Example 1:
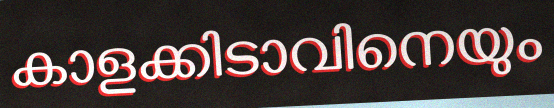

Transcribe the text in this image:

കാളക്കിടാവിനെയും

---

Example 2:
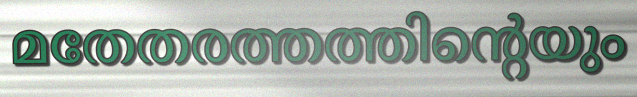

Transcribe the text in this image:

മതേതരത്തത്തിന്റെയും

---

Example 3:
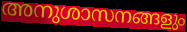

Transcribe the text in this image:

അനുശാസനങ്ങളും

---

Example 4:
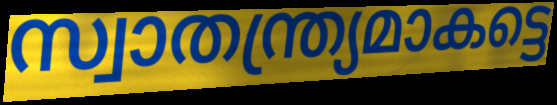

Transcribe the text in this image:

സ്വാതന്ത്ര്യമാകട്ടെ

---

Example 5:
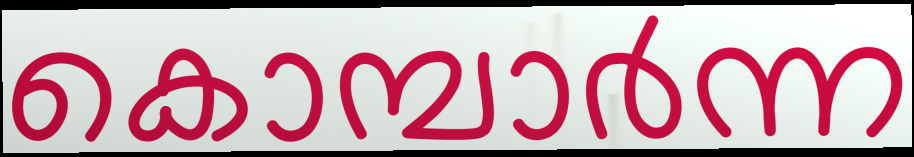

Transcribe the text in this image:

കൊമ്പാർന്ന